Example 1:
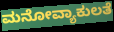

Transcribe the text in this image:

ಮನೋವ್ಯಾಕುಲತೆ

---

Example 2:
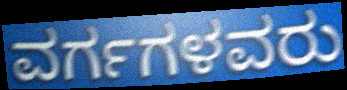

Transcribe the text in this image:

ವರ್ಗಗಳವರು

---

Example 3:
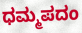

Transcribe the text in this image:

ಧಮ್ಮಪದಂ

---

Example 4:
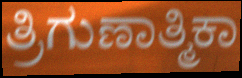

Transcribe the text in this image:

ತ್ರಿಗುಣಾತ್ಮಿಕಾ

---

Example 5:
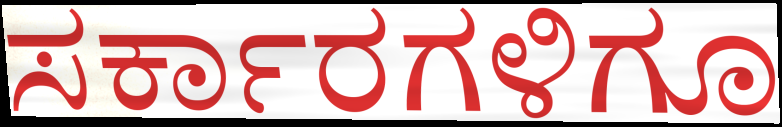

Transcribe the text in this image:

ಸರ್ಕಾರಗಳಿಗೂ